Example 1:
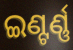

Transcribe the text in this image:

ଇଣ୍ଟର୍ଣ୍ଣ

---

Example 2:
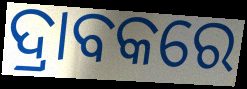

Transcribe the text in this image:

ଦ୍ରାବକରେ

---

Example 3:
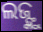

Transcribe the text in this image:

ଲଜ୍ଙ୍କୁ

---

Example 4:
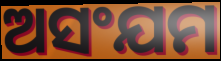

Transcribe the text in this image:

ଅସଂଯମ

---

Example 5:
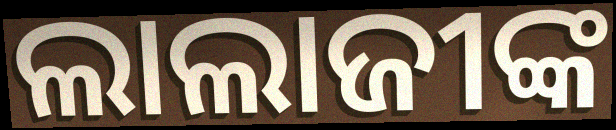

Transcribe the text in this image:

ଲାଲାଜୀଙ୍କ